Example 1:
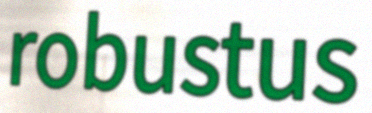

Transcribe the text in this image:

robustus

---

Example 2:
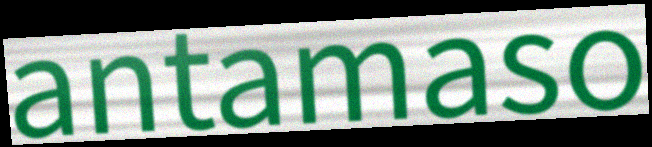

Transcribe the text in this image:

antamaso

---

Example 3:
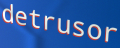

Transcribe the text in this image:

detrusor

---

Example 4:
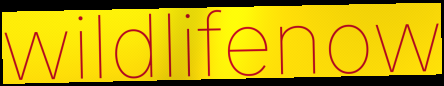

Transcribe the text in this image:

wildlifenow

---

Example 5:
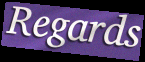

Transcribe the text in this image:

Regards